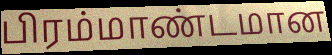
பிரம்மாண்டமான